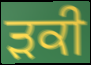
ੜਕੀ